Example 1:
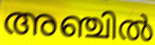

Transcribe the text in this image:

അഞ്ചിൽ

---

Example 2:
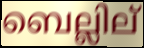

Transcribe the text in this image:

ബെല്ലില്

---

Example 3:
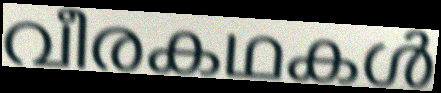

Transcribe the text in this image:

വീരകഥകൾ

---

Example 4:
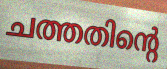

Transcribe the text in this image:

ചത്തതിന്റെ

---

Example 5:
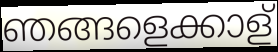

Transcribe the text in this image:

ഞങ്ങളെക്കാള്